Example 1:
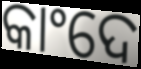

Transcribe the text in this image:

କାଂଦେ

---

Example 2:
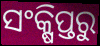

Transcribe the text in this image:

ସଂକ୍ଷିପ୍ତରୁ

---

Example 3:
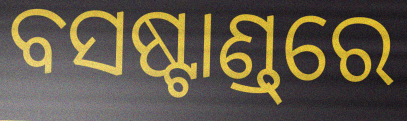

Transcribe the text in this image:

ବସଷ୍ଟାଣ୍ଡ୍‌ରେ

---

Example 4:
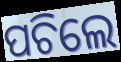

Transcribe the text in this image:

ପଚିଲେ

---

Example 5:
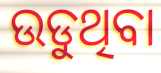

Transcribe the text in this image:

ଉଡୁଥିବା